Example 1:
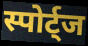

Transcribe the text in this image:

स्पोर्ट्ज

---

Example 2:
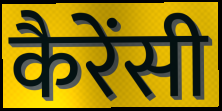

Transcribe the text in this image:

कैरेंसी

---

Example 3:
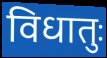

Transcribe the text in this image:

विधातुः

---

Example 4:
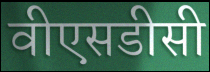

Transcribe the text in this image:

वीएसडीसी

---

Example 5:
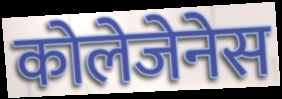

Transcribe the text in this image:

कोलेजेनेस